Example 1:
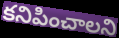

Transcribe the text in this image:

కనిపించాలని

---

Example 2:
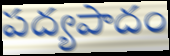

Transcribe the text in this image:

పద్యపాదం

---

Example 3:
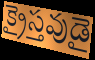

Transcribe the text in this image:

క్రైస్తవుడై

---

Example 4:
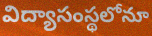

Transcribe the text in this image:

విద్యాసంస్థలోనూ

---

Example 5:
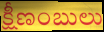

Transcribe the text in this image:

క్షీణంబులు